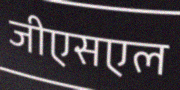
जीएसएल